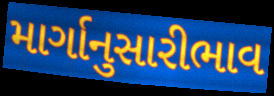
માર્ગાનુસારીભાવ